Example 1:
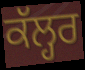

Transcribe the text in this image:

ਕੱਲ੍ਹਰ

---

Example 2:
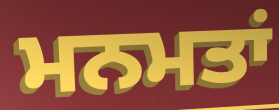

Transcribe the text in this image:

ਮਨਮਤਾਂ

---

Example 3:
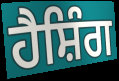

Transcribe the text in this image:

ਹੈਸ਼ਿੰਗ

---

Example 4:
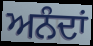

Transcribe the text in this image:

ਅਨੰਦਾਂ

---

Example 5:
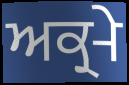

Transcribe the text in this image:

ਅਕ੍ਰ੍ਮੇ